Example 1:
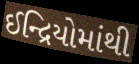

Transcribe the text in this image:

ઈન્દ્રિયોમાંથી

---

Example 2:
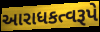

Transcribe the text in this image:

આરાધકત્વરૂપે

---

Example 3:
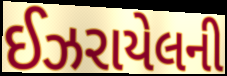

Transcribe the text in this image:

ઈઝરાયેલની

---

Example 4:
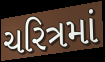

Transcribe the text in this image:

ચરિત્રમાં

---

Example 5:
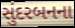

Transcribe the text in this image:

સુંદરબનના